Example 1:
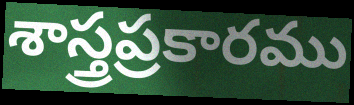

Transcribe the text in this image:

శాస్త్రప్రకారము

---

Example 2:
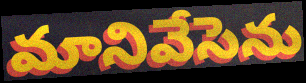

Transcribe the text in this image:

మానివేసెను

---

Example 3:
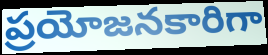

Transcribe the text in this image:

ప్రయోజనకారిగా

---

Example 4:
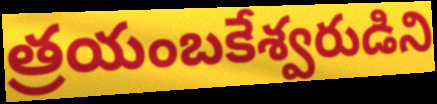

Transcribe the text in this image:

త్రయంబకేశ్వరుడిని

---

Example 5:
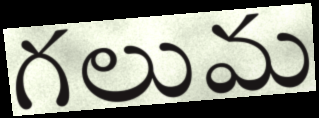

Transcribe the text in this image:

గలుమ